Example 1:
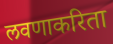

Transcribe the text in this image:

लवणाकरिता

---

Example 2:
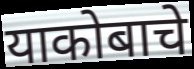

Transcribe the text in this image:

याकोबाचे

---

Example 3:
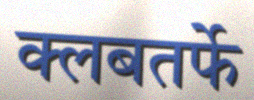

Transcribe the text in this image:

क्लबतर्फे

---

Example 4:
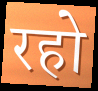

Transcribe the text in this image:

रहो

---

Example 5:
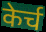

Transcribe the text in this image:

केर्च